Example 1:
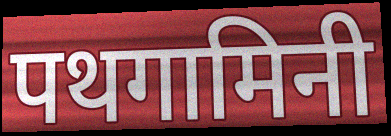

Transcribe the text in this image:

पथगामिनी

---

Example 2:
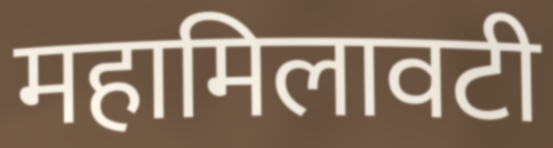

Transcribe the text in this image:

महामिलावटी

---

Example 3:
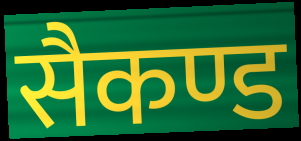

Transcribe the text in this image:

सैकण्ड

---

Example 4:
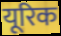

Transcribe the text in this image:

यूरिक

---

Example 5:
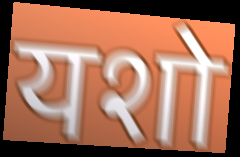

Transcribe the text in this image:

यशो